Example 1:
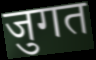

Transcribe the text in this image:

जुगत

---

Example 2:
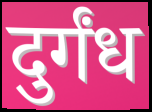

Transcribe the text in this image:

दुर्गंध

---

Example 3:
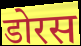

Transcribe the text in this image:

डोरस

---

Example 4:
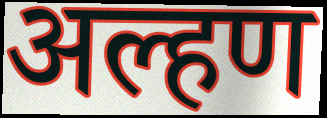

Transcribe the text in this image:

अल्हण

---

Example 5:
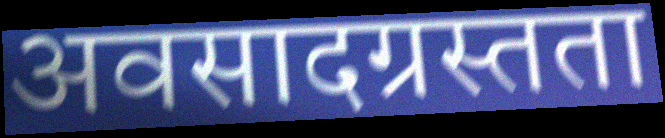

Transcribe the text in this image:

अवसादग्रस्तता